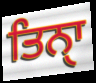
ਤਿਨੑਾ